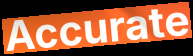
Accurate